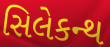
સિલેકન્થ